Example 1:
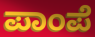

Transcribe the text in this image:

ಪಾಂಪೆ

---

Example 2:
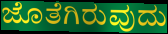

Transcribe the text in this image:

ಜೊತೆಗಿರುವುದು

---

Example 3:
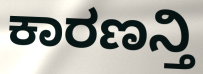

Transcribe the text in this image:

ಕಾರಣನ್ತಿ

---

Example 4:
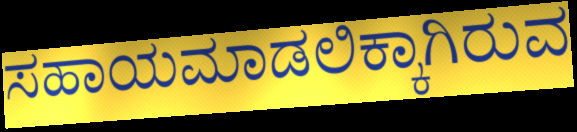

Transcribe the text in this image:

ಸಹಾಯಮಾಡಲಿಕ್ಕಾಗಿರುವ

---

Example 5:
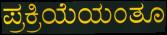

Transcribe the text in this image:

ಪ್ರಕ್ರಿಯೆಯಂತೂ